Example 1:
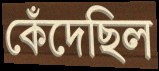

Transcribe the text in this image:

কেঁদেছিল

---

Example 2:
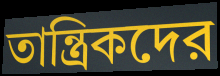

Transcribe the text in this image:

তান্ত্রিকদের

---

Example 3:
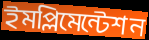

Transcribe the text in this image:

ইমপ্লিমেন্টেশন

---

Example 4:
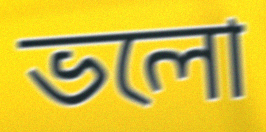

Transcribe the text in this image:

ভলো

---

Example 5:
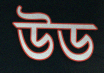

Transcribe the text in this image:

উড